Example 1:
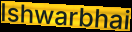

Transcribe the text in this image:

Ishwarbhai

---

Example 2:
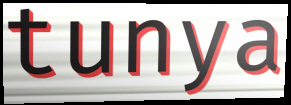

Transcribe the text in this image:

tunya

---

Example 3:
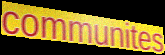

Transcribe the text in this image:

communites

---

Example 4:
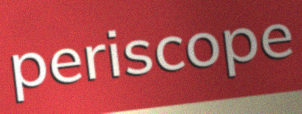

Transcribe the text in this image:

periscope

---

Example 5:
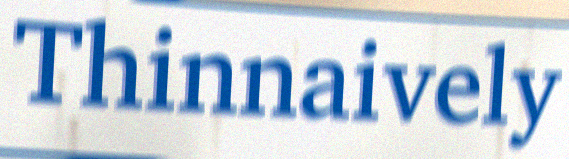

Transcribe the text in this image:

Thinnaively